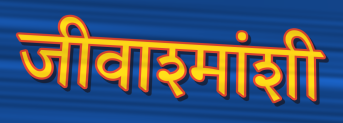
जीवाश्मांशी